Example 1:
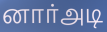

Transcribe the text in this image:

னார்அடி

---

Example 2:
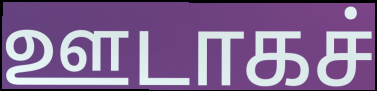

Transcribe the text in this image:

ஊடாகச்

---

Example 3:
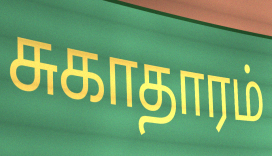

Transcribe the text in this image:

சுகாதாரம்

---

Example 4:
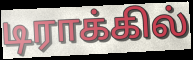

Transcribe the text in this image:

டிராக்கில்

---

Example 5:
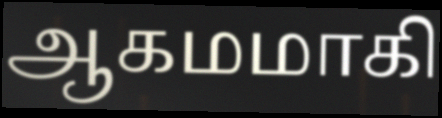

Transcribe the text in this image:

ஆகமமாகி